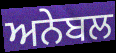
ਅਨੇਬਲ